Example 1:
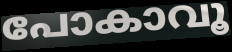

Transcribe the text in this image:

പോകാവൂ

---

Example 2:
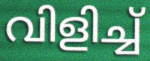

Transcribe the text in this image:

വിളിച്ച്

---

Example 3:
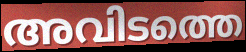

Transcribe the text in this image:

അവിടത്തെ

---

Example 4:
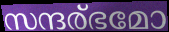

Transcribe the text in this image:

സന്ദര്ഭമോ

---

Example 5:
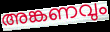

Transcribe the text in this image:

അങ്കണവും